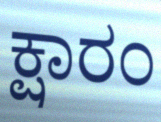
ಕ್ಷಾರಂ